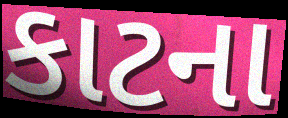
કાટના